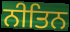
ਨੀਤਿਨ